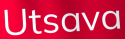
Utsava